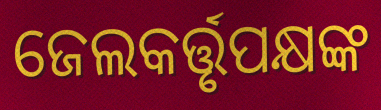
ଜେଲକର୍ତ୍ତୃପକ୍ଷଙ୍କ